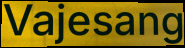
Vajesang